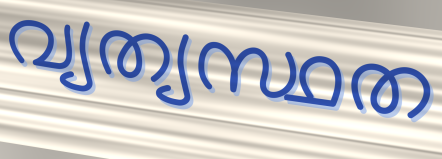
വ്യത്യസ്ഥത